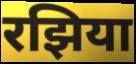
रझिया